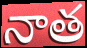
నాత